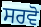
ਸਰਵੋ